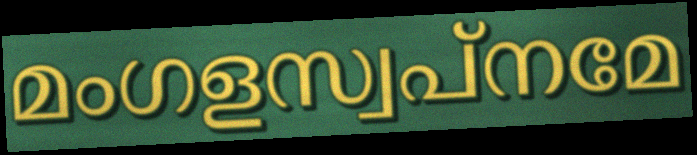
മംഗളസ്വപ്നമേ